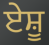
ਏਸ਼ੂ